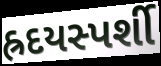
હ્રદયસ્પર્શી